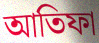
আতিফা